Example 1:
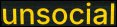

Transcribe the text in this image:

unsocial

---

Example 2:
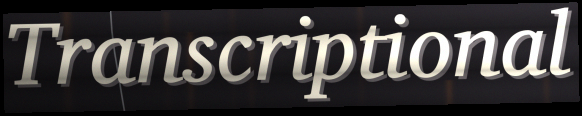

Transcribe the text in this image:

Transcriptional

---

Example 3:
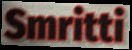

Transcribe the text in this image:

Smritti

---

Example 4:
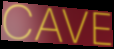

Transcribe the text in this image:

CAVE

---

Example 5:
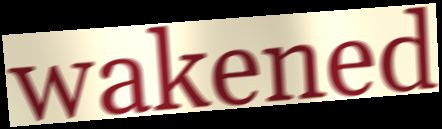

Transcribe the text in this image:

wakened